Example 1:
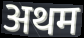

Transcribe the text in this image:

अथम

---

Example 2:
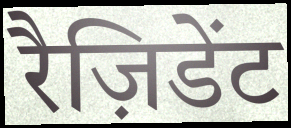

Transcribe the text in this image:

रैज़िडेंट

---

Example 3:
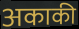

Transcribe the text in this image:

अकाकी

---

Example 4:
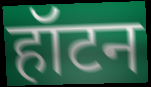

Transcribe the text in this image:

हॉटन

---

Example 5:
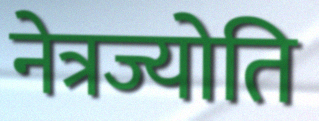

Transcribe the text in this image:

नेत्रज्योति